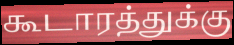
கூடாரத்துக்கு